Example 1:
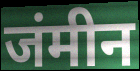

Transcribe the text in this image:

जंमीन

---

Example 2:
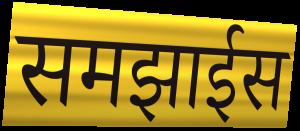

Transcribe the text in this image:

समझाईस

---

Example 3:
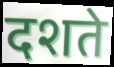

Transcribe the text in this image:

दशते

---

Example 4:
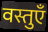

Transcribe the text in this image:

वस्तुएँ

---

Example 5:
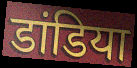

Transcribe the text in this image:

डांडिया